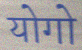
योगो